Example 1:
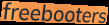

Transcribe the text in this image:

freebooters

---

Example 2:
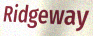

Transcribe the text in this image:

Ridgeway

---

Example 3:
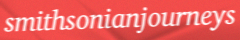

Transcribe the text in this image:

smithsonianjourneys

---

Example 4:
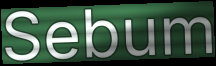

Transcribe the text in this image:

Sebum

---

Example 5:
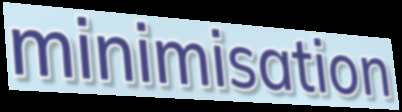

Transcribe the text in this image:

minimisation